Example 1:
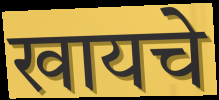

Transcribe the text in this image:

खायचे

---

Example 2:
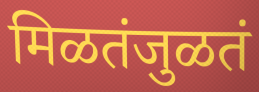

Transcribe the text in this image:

मिळतंजुळतं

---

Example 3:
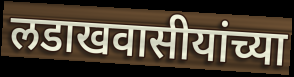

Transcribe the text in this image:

लडाखवासीयांच्या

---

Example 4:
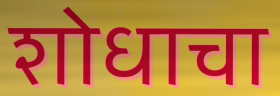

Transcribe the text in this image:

शोधाचा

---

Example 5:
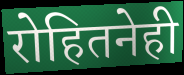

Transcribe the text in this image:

रोहितनेही